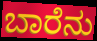
ಬಾರೆನು